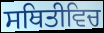
ਸਥਿਤੀਵਿਚ